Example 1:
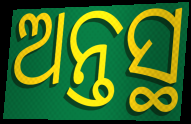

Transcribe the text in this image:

ଅନ୍ତସ୍ଥ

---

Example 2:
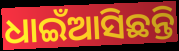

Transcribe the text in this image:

ଧାଇଁଆସିଛନ୍ତି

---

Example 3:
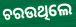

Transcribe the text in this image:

ଚରଉଥିଲେ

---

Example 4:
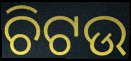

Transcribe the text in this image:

ଚିଟଉ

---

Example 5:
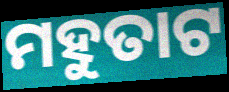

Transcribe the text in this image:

ମହୁତାଟ